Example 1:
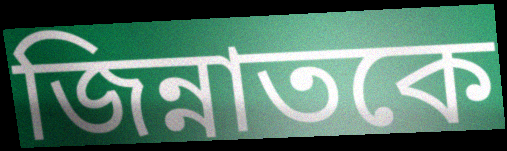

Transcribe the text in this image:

জিন্নাতকে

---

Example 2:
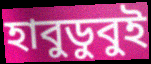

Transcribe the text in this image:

হাবুডুবুই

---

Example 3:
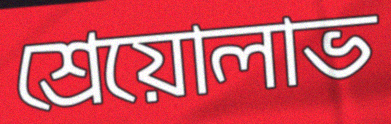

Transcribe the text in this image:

শ্রেয়োলাভ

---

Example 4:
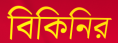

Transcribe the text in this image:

বিকিনির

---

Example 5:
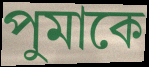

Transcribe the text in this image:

পুমাকে